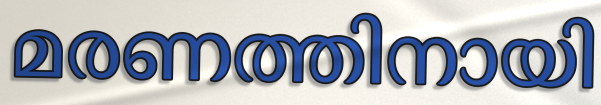
മരണത്തിനായി